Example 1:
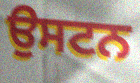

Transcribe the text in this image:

ਉਸਟਨ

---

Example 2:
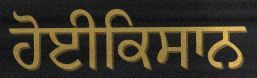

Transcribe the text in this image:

ਹੋਈਕਿਸਾਨ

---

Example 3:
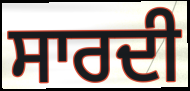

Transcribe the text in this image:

ਸਾਰਦੀ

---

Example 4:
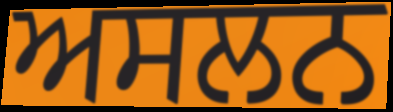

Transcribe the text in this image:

ਅਸਲਨ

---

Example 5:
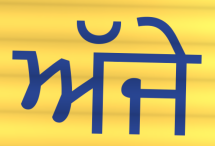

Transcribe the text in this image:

ਅੱਜੇ